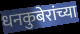
धनकुबेरांच्या